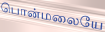
பொன்மலையே